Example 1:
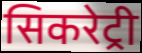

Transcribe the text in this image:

सिकरेट्री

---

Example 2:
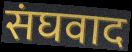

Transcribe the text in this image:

संघवाद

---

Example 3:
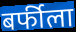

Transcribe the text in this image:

बर्फीला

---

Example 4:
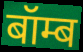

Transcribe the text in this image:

बॉम्ब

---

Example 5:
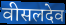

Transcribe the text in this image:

वीसलदेव